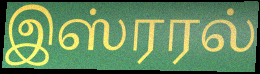
இஸ்ரரல்